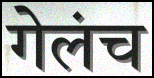
गेलंच